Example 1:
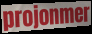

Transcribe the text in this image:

projonmer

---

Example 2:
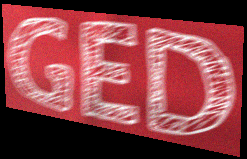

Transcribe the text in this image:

GED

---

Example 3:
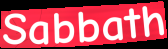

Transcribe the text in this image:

Sabbath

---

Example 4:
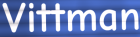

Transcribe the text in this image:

Vittman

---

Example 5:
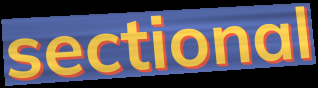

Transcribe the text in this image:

sectional